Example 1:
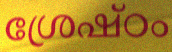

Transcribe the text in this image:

ശ്രേഷ്ഠം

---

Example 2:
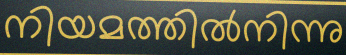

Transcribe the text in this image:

നിയമത്തിൽനിന്നു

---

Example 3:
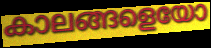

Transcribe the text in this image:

കാലങ്ങളെയോ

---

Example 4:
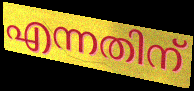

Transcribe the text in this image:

എന്നതിന്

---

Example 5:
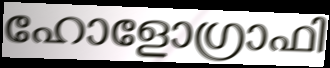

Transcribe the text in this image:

ഹോളോഗ്രാഫി